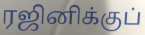
ரஜினிக்குப்